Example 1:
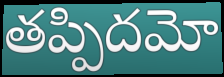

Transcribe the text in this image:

తప్పిదమో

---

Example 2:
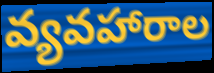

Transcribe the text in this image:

వ్యవహారాల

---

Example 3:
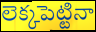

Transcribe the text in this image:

లెక్కపెట్టినా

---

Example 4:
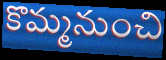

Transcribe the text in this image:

కొమ్మనుంచి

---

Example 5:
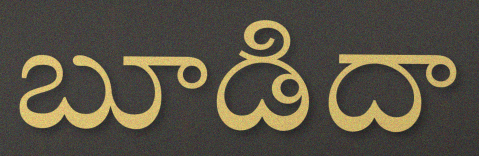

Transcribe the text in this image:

బూడిదా